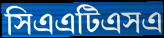
সিএএটিএসএ